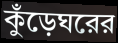
কুঁড়েঘরের